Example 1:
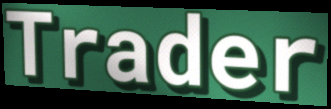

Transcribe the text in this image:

Trader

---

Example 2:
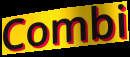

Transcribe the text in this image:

Combi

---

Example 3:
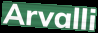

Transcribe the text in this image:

Arvalli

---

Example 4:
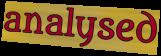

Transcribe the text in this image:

analysed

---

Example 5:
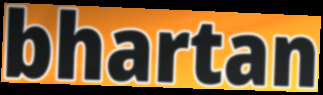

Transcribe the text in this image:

bhartan